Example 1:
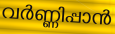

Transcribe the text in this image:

വർണ്ണിപ്പാൻ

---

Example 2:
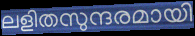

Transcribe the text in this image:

ലളിതസുന്ദരമായി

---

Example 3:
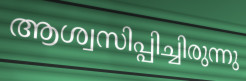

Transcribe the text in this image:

ആശ്വസിപ്പിച്ചിരുന്നു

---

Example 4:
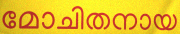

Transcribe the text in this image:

മോചിതനായ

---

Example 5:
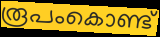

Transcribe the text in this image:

രൂപംകൊണ്ട്